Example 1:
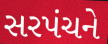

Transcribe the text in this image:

સરપંચને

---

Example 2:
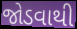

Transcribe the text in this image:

જોડવાથી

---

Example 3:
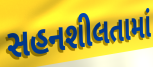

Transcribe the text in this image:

સહનશીલતામાં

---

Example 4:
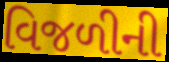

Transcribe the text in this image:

વિજળીની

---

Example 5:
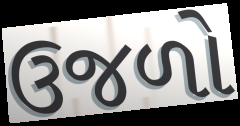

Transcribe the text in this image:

ઉજળો